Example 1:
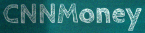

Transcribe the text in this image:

CNNMoney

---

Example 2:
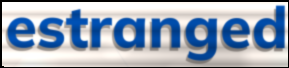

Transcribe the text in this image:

estranged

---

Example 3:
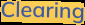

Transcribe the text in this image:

Clearing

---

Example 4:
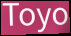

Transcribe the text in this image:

Toyo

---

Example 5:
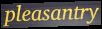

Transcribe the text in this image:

pleasantry